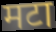
मटा